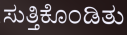
ಸುತ್ತಿಕೊಂಡಿತು